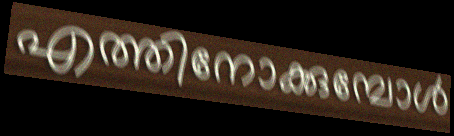
എത്തിനോക്കുമ്പോൾ